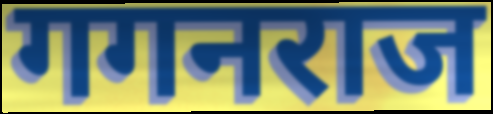
गगनराज